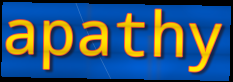
apathy